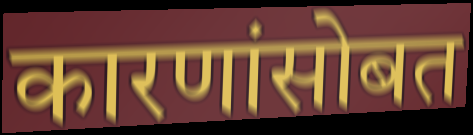
कारणांसोबत